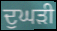
ਦੁਘੜੀ